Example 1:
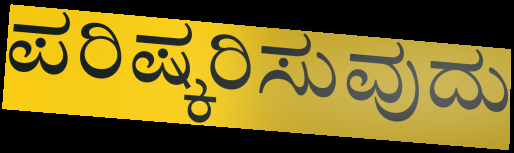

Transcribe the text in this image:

ಪರಿಷ್ಕರಿಸುವುದು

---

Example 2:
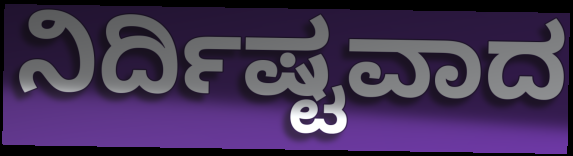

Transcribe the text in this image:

ನಿರ್ದಿಷ್ಟವಾದ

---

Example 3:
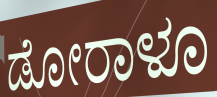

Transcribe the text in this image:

ಡೋರಾಳೂ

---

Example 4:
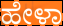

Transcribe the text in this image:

ಹೇಳಾ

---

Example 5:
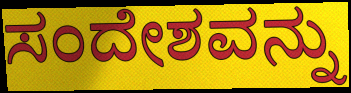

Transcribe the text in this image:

ಸಂದೇಶವನ್ನು